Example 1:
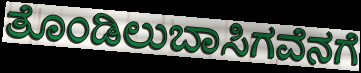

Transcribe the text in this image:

ತೊಂಡಿಲುಬಾಸಿಗವೆನಗೆ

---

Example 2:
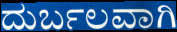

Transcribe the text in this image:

ದುರ್ಬಲವಾಗಿ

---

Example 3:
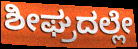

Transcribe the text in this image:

ಶೀಘ್ರದಲ್ಲೇ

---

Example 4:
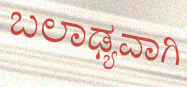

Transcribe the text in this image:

ಬಲಾಢ್ಯವಾಗಿ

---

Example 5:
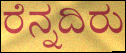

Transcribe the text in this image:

ರೆನ್ನದಿರು